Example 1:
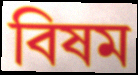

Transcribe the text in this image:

বিষম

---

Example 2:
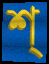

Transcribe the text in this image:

শ্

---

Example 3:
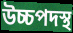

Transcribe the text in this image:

উচ্চপদস্থ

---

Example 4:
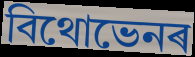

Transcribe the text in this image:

বিথোভেনৰ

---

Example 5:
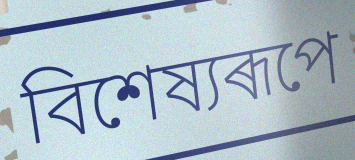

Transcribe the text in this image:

বিশেষ্যৰূপে